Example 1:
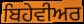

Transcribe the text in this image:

ਬਿਹੇਵੀਅਰ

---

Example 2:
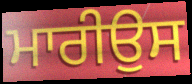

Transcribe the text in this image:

ਮਾਰੀਉਸ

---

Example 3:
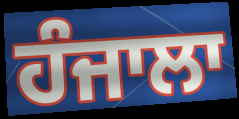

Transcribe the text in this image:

ਹੰਜਾਲਾ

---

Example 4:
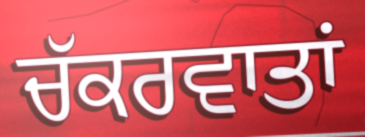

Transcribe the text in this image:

ਚੱਕਰਵਾਤਾਂ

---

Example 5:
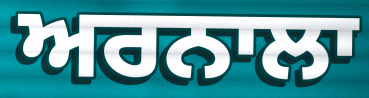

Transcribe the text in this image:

ਅਰਨਾਲਾ